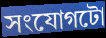
সংযোগটো